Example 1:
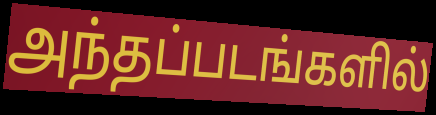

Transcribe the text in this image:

அந்தப்படங்களில்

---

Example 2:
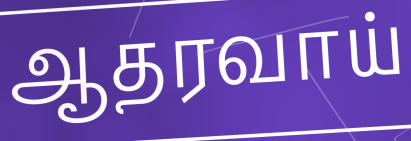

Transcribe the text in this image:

ஆதரவாய்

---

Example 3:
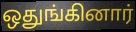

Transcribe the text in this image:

ஒதுங்கினார்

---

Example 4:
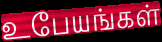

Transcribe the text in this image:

உபேயங்கள்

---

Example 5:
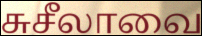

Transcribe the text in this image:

சுசீலாவை